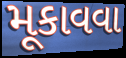
મૂકાવવા